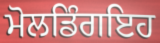
ਮੋਲਡਿੰਗਇਹ